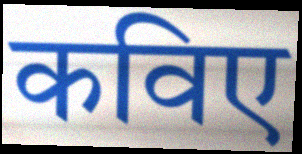
कविए